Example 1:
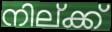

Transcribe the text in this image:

നില്ക്ക്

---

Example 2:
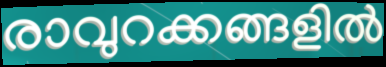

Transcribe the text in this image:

രാവുറക്കങ്ങളിൽ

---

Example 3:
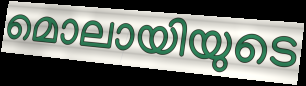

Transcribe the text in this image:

മൊലായിയുടെ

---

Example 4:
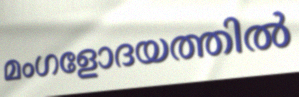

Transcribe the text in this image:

മംഗളോദയത്തിൽ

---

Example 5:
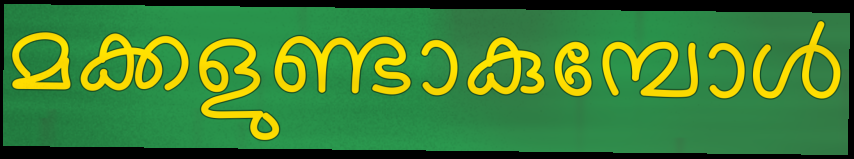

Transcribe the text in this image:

മക്കളുണ്ടാകുമ്പോൾ